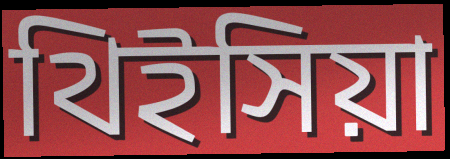
থিইসিয়া